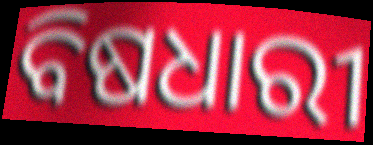
ବିଷଧାରୀ